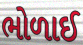
ભોળાઈ